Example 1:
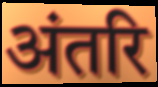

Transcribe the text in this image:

अंतरि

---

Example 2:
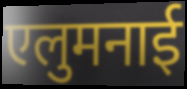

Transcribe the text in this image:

एलुमनाई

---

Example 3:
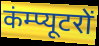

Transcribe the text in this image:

कंम्प्यूटरों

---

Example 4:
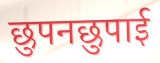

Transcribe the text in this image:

छुपनछुपाई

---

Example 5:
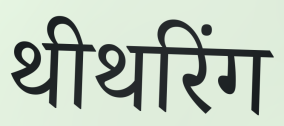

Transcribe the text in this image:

थीथरिंग